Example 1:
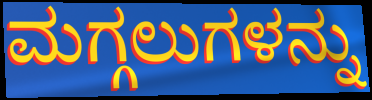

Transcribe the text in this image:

ಮಗ್ಗಲುಗಳನ್ನು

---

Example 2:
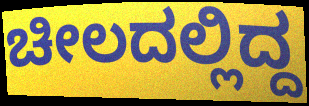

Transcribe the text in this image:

ಚೀಲದಲ್ಲಿದ್ದ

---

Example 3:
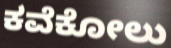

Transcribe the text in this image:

ಕವೆಕೋಲು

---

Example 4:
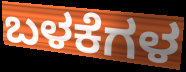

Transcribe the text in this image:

ಬಳಕೆಗಳ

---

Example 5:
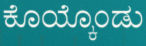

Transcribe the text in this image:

ಕೊಯ್ಕೊಂಡು